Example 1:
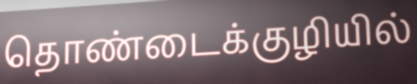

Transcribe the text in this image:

தொண்டைக்குழியில்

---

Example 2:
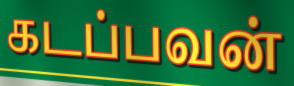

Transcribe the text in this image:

கடப்பவன்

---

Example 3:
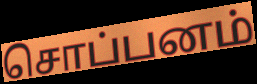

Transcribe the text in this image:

சொப்பனம்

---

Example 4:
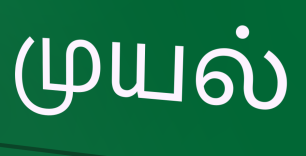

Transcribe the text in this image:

முயல்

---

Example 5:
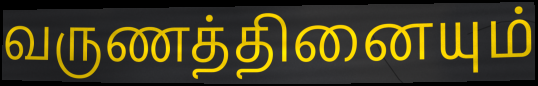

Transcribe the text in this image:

வருணத்தினையும்